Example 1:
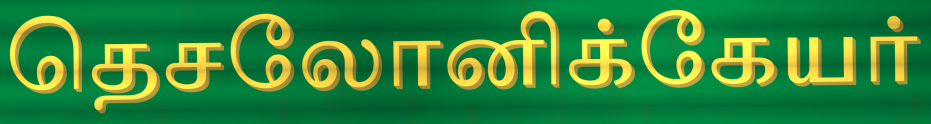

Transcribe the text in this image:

தெசலோனிக்கேயர்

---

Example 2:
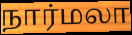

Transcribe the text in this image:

நார்மலா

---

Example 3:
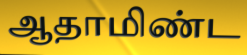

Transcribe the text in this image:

ஆதாமிண்ட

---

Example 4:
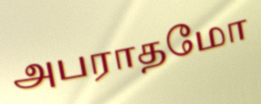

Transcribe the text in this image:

அபராதமோ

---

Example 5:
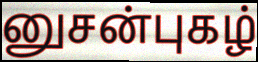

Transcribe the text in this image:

னுசன்புகழ்